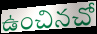
ఉంచినచో